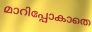
മാറിപ്പോകാതെ